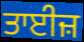
ਤਾਈਜ਼